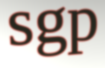
sgp